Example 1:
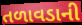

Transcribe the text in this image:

તળાવડાની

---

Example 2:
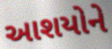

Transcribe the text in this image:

આશયોને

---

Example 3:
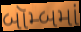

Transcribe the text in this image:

બૉમ્બમાં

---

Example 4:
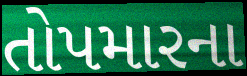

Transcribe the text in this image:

તોપમારના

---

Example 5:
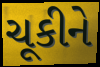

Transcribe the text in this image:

ચૂકીને